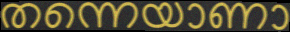
തന്നെയാണാ